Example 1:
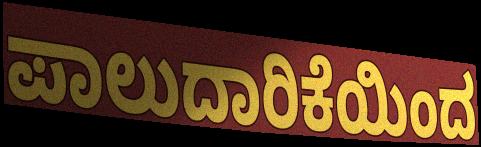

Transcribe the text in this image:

ಪಾಲುದಾರಿಕೆಯಿಂದ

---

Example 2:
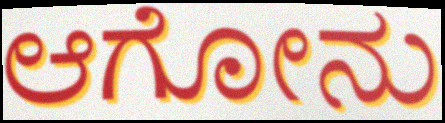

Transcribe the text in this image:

ಆಗೋನು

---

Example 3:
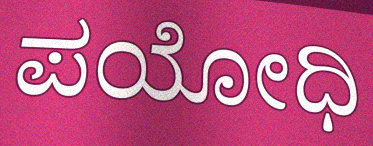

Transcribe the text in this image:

ಪಯೋಧಿ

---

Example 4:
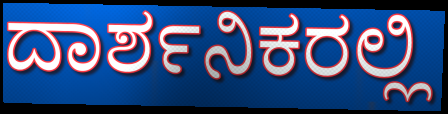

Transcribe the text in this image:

ದಾರ್ಶನಿಕರಲ್ಲಿ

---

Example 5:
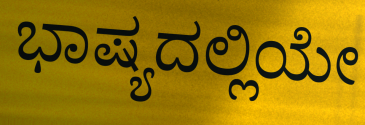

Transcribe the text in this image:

ಭಾಷ್ಯದಲ್ಲಿಯೇ